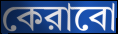
কেরাবো